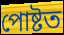
পোষ্টত